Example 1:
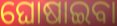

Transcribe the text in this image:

ଘୋଷାଇବା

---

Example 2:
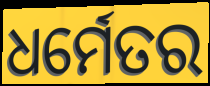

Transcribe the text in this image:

ଧର୍ମେତର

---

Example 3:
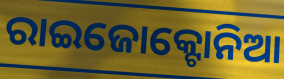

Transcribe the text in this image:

ରାଇଜୋକ୍ଟୋନିଆ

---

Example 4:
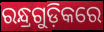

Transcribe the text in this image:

ରନ୍ଧ୍ରଗୁଡ଼ିକରେ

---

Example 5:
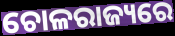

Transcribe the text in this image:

ଚୋଳରାଜ୍ୟରେ